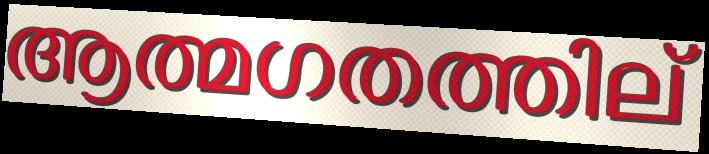
ആത്മഗതത്തില്